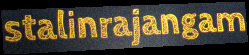
stalinrajangam